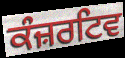
ਕੰਜ਼ਰਟਿਵ